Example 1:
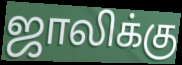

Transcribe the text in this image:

ஜாலிக்கு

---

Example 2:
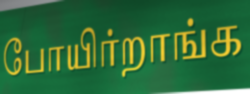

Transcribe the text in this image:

போயிர்றாங்க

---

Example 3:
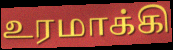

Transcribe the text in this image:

உரமாக்கி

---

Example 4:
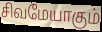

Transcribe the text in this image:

சிவமேயாகும்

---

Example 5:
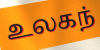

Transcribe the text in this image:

உலகந்